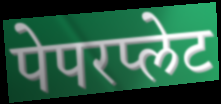
पेपरप्लेट